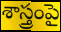
శాస్త్రంపై